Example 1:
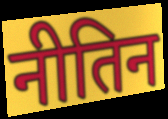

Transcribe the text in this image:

नीतिन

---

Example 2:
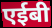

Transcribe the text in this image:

एईबी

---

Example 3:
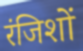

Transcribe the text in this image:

रंजिशों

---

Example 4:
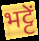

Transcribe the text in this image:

भट्टें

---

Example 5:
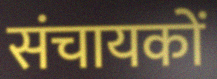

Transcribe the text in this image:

संचायकों